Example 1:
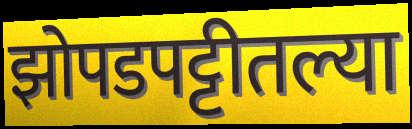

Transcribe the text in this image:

झोपडपट्टीतल्या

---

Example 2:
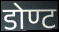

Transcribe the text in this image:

डोण्ट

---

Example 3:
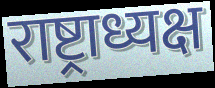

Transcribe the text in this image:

राष्ट्राध्यक्ष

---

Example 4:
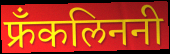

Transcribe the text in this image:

फ्रँकलिननी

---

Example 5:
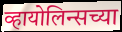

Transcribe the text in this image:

व्हायोलिन्सच्या